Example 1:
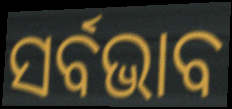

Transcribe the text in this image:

ସର୍ବଭାବ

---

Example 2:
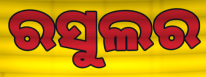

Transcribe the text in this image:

ରସୁଲର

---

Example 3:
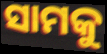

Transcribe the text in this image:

ସାମକୁ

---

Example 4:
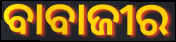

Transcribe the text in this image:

ବାବାଜୀର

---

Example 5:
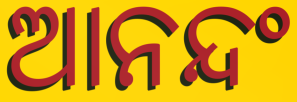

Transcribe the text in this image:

ଆନନ୍ଦଂ